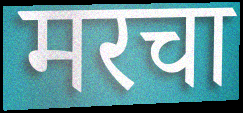
मरचा